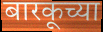
बारकूच्या